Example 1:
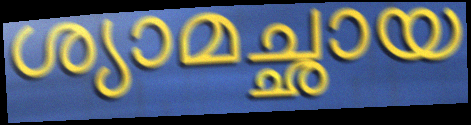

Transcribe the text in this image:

ശ്യാമച്ഛായ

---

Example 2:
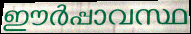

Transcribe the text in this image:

ഈർപ്പാവസ്ഥ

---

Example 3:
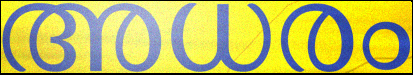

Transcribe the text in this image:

അധരം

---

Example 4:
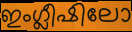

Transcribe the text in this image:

ഇംഗ്ലീഷിലോ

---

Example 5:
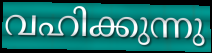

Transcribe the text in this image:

വഹിക്കുന്നു